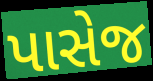
પાસેજ